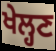
ਖੇਲ੍ਹਣ